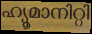
ഹ്യൂമാനിറ്റി